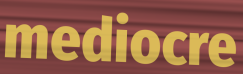
mediocre